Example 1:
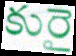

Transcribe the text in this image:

కురై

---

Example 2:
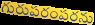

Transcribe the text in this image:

గురుపరంపరను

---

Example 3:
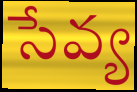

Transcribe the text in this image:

సేవ్య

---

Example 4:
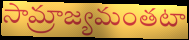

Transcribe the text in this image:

సామ్రాజ్యమంతటా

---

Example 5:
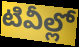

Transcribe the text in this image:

టివీల్లో